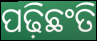
ପଢ଼ିଛଂତି